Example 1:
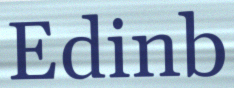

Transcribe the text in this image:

Edinb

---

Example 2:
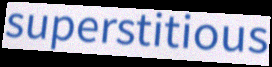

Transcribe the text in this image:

superstitious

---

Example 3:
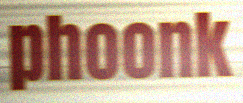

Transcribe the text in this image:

phoonk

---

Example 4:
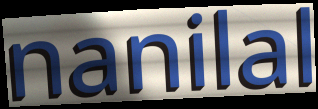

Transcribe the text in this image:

nanilal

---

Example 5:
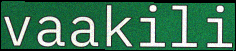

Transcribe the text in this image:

vaakili